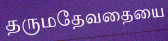
தருமதேவதையை